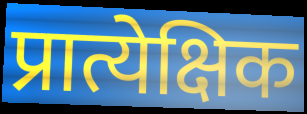
प्रात्येक्षिक